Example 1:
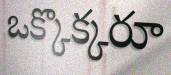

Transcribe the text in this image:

ఒక్కొక్కరూ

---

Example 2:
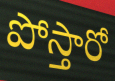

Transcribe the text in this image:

పోస్తారో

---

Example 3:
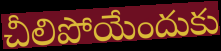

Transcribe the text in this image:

చీలిపోయేందుకు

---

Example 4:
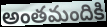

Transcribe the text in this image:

అంతమందికి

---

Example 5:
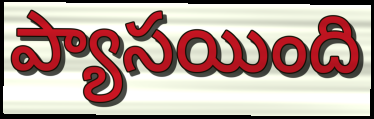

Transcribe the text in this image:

ప్యాసయింది